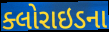
ક્લોરાઇડના